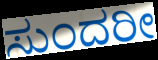
ಸುಂದರೀ